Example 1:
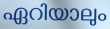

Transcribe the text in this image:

ഏറിയാലും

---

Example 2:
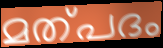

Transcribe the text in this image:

മത്പദം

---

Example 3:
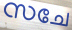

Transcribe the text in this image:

സചേ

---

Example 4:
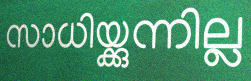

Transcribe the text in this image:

സാധിയ്ക്കുന്നില്ല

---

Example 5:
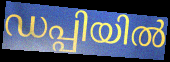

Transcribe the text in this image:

ഡപ്പിയിൽ